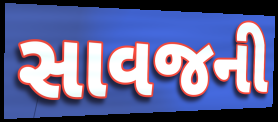
સાવજની